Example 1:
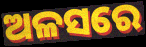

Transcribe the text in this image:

ଅଳସରେ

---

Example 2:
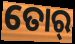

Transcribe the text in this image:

ତୋର୍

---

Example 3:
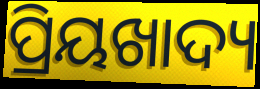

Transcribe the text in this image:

ପ୍ରିୟଖାଦ୍ୟ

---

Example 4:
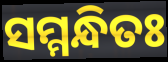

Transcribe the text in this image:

ସମ୍ମନ୍ଧିତଃ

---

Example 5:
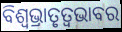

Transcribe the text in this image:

ବିଶ୍ଵଭ୍ରାତୃତ୍ୱଭାବର